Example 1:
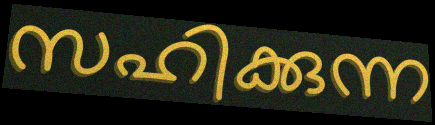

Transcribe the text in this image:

സഹിക്കുന്ന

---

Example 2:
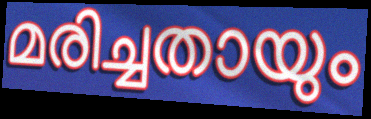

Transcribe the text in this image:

മരിച്ചതായും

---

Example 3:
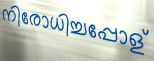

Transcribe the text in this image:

നിരോധിച്ചപ്പോള്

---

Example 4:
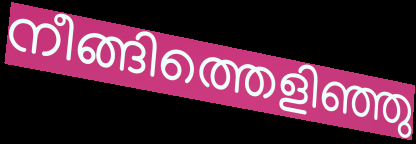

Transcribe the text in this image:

നീങ്ങിത്തെളിഞ്ഞു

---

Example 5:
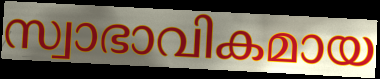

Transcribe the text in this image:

സ്വാഭാവികമായ